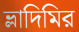
ভ্লাদিমির